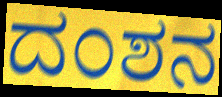
ದಂಶನ